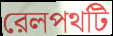
রেলপথটি